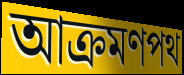
আক্রমণপথ